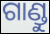
ଗାଣ୍ଡୁ